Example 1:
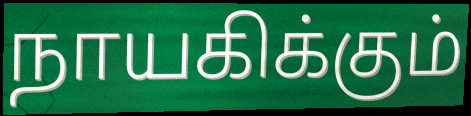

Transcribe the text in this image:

நாயகிக்கும்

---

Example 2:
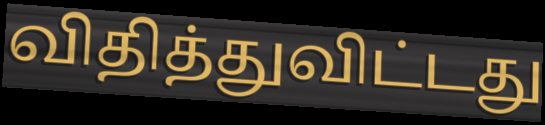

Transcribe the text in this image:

விதித்துவிட்டது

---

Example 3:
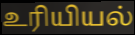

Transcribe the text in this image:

உரியியல்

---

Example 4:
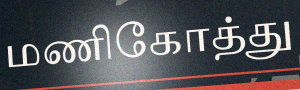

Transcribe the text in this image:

மணிகோத்து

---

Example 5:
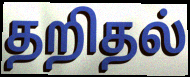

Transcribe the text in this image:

தறிதல்